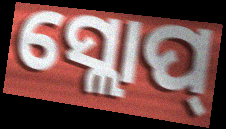
ସ୍ଲୋପ୍